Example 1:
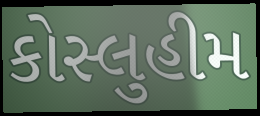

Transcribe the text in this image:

કોસ્લુહીમ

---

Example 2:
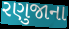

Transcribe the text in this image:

રણુજાના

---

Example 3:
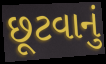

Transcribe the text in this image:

છૂટવાનું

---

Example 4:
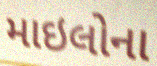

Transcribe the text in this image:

માઇલોના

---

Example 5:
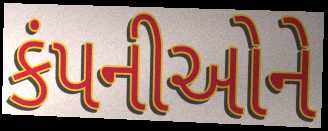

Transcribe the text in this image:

કંપનીઓને